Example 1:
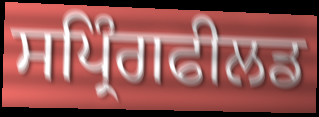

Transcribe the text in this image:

ਸਪ੍ਰਿੰਗਫੀਲਡ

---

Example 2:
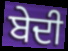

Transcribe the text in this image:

ਬੇਦੀ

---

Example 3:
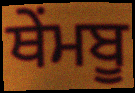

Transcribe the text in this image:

ਥੇਂਮਬੂ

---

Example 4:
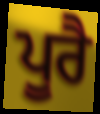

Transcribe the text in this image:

ਪੂਰੈ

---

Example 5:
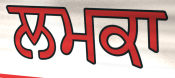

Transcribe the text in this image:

ਲਮਕਾ